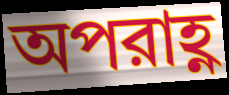
অপরাহ্ণ